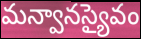
మన్వానస్యైవం